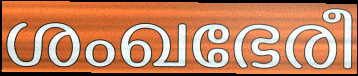
ശംഖഭേരീ